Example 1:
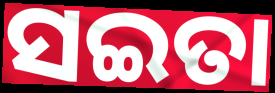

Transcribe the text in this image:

ସଇତା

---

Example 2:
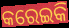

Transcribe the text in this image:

କରେଇକି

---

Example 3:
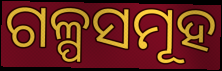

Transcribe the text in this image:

ଗଳ୍ପସମୂହ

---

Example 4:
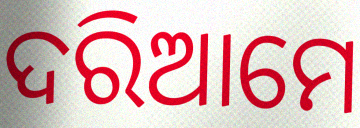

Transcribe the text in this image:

ଦରିଆମେ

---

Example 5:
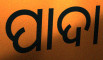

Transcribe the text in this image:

ପାଦା